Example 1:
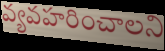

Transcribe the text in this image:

వ్యవహరించాలని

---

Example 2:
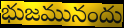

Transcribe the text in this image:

భుజమునందు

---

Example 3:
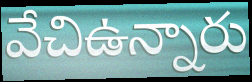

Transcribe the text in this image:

వేచిఉన్నారు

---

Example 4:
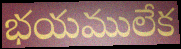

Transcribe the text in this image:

భయములేక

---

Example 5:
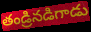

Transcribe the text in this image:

తండ్రినడిగాడు